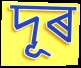
দূৰ